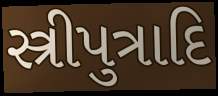
સ્ત્રીપુત્રાદિ